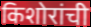
किशोरांची